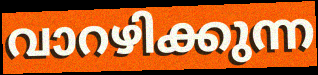
വാറഴിക്കുന്ന